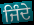
ਜਿੰਦੇ